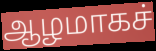
ஆழமாகச்